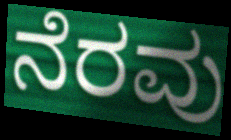
ನೆರವು